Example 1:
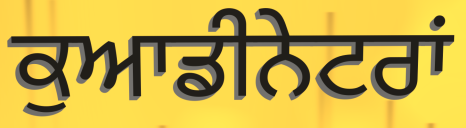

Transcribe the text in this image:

ਕੁਆਡੀਨੇਟਰਾਂ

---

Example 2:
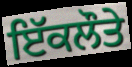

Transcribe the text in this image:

ਇੱਕਲੌਤੇ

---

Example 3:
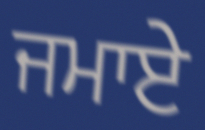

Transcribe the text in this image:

ਜਮਾਏ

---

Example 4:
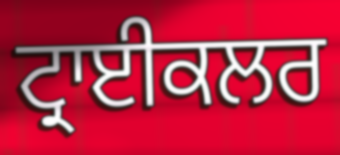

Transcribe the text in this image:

ਟ੍ਰਾਈਕਲਰ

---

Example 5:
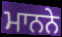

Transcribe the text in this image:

ਮਾਨਨੇ